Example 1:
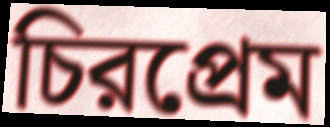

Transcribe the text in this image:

চিরপ্রেম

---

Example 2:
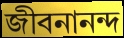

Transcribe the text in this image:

জীবনানন্দ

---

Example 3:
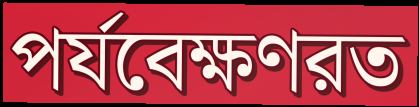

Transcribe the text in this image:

পর্যবেক্ষণরত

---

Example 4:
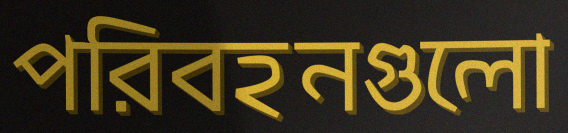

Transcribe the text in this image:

পরিবহনগুলো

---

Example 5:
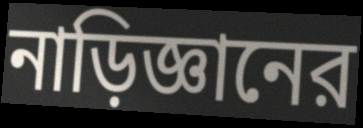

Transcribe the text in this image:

নাড়িজ্ঞানের